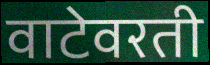
वाटेवरती